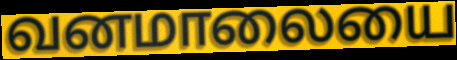
வனமாலையை